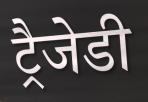
ट्रैजेडी